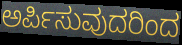
ಅರ್ಪಿಸುವುದರಿಂದ